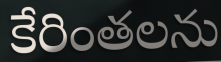
కేరింతలను